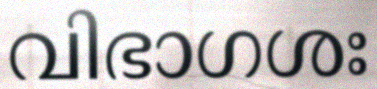
വിഭാഗശഃ